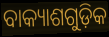
ବାକ୍ୟାଶଗୁଡ଼ିକ